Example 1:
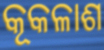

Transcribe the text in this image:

କୂକଳାଶ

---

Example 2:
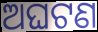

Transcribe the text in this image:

ଅଘଟଣ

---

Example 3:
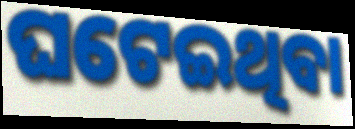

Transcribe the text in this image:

ଘଟେଇଥିବା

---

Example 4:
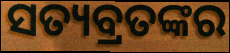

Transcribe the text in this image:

ସତ୍ୟବ୍ରତଙ୍କର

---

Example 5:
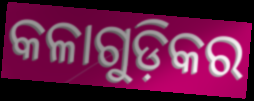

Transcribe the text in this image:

କଳାଗୁଡ଼ିକର